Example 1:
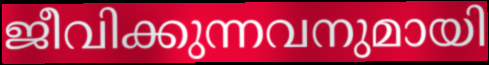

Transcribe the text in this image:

ജീവിക്കുന്നവനുമായി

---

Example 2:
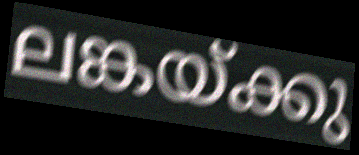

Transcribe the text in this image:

ലങ്കയ്ക്കു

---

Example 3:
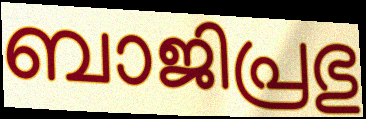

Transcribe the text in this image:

ബാജിപ്രഭു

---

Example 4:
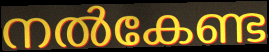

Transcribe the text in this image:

നൽകേണ്ട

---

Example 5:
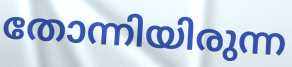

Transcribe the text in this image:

തോന്നിയിരുന്ന